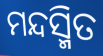
ମନ୍ଦସ୍ମିତ